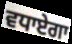
ਵਧਾਏਗਾ